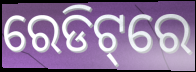
ରେଡିଟ୍‌ରେ